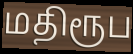
மதிரூப